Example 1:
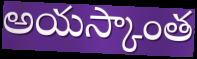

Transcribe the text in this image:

అయస్కాంత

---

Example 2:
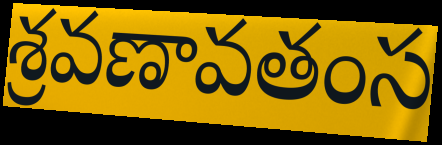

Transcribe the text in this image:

శ్రవణావతంస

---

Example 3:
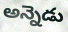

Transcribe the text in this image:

అన్నెడు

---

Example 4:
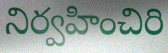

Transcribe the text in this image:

నిర్వహించిరి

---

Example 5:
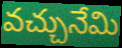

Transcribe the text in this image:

వచ్చునేమి